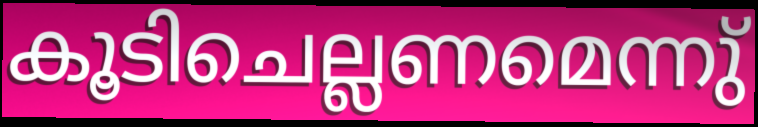
കൂടിചെല്ലണമെന്നു്